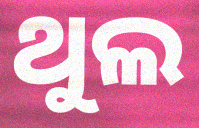
ଥୁଲ